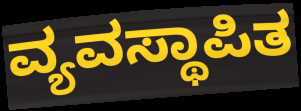
ವ್ಯವಸ್ಥಾಪಿತ